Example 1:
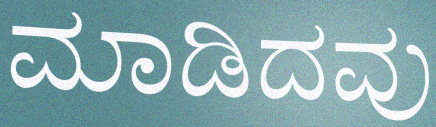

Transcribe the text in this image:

ಮಾಡಿದವು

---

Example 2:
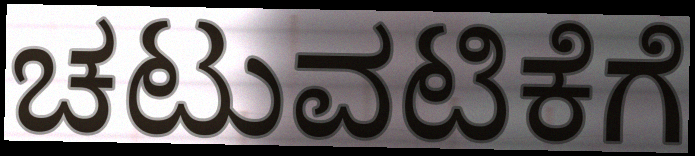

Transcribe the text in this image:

ಚಟುವಟಿಕೆಗೆ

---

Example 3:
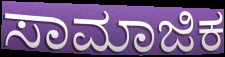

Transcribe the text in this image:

ಸಾಮಾಜಿಕ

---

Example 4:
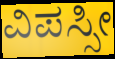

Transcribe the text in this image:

ವಿಪಸ್ಸೀ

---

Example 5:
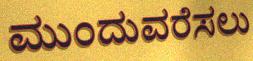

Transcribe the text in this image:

ಮುಂದುವರೆಸಲು